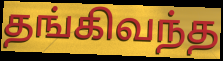
தங்கிவந்த